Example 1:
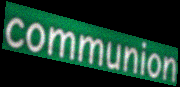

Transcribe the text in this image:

communion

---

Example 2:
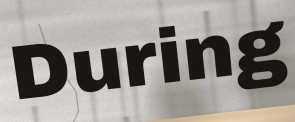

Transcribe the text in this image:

During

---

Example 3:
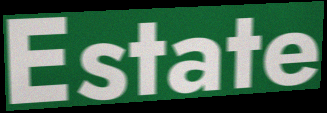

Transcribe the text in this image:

Estate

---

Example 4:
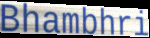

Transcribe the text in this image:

Bhambhri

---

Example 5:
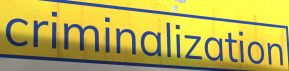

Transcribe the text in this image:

criminalization